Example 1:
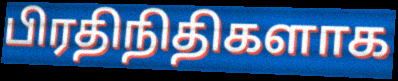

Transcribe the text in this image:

பிரதிநிதிகளாக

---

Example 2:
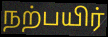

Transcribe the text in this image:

நற்பயிர்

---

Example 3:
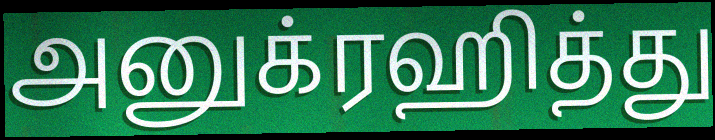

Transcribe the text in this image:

அனுக்ரஹித்து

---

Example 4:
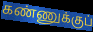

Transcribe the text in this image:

கண்ணுக்குப்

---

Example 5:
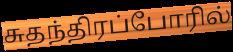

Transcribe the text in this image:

சுதந்திரப்போரில்